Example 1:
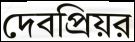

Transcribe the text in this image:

দেবপ্রিয়র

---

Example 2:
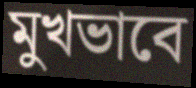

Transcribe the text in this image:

মুখভাবে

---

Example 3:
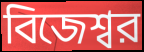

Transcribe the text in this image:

বিজেশ্বর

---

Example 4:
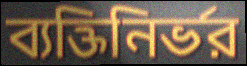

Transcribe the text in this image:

ব্যক্তিনির্ভর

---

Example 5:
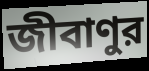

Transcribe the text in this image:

জীবাণুর